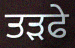
ਤੜਫੇ